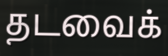
தடவைக்